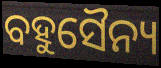
ବହୁସୈନ୍ୟ